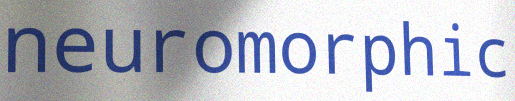
neuromorphic